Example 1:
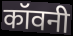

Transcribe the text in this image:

कॉवनी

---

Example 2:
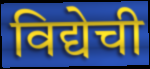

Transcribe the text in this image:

विद्येची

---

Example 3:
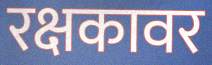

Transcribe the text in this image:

रक्षकावर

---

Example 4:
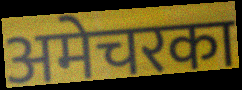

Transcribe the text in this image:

अमेचरका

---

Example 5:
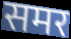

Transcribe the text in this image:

समर